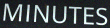
MINUTES